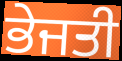
ਭੇਜਤੀ